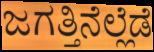
ಜಗತ್ತಿನೆಲ್ಲೆಡೆ